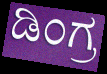
ಡಿಂಗ್ರ